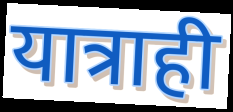
यात्राही